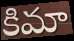
కిమా